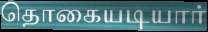
தொகையடியார்